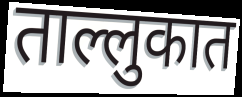
ताल्लुकात